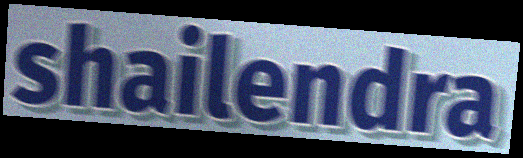
shailendra